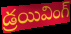
డ్రయివింగ్